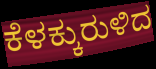
ಕೆಳಕ್ಕುರುಳಿದ